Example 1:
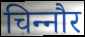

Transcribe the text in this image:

चिन्‍नौर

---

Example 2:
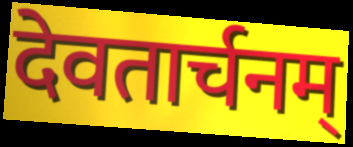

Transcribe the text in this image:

देवतार्चनम्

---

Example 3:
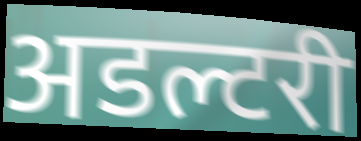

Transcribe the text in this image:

अडल्टरी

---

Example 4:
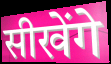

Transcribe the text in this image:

सीखेंगे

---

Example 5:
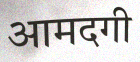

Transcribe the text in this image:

आमदगी